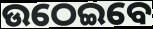
ଉଠେଇବେ